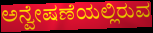
ಅನ್ವೇಷಣೆಯಲ್ಲಿರುವ